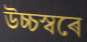
উচ্চস্বৰে